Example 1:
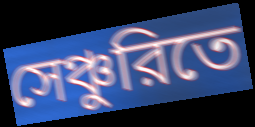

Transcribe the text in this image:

সেঞ্চুরিতে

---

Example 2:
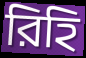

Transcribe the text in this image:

রিহি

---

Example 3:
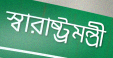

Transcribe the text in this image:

স্বারাষ্ট্রমন্ত্রী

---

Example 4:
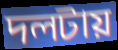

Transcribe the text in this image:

দলটায়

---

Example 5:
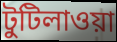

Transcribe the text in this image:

টুটিলাওয়া